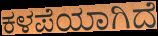
ಕಳಪೆಯಾಗಿದೆ